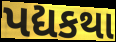
પદ્યકથા